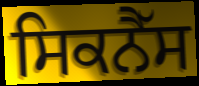
ਸਿਕਨੈੱਸ